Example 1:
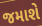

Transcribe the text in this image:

જમાશે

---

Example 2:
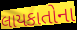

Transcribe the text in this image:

લાયકાતોના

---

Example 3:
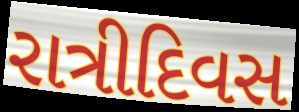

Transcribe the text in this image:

રાત્રીદિવસ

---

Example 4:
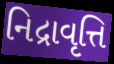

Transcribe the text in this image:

નિદ્રાવૃત્તિ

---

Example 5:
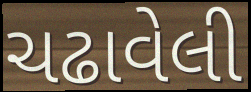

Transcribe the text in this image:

ચઢાવેલી